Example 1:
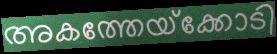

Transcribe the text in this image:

അകത്തേയ്‌ക്കോടി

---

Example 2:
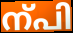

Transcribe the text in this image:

ന്പി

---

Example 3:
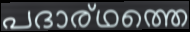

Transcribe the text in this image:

പദാര്ഥത്തെ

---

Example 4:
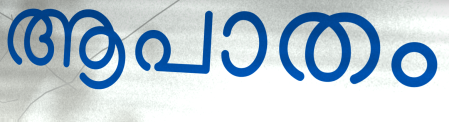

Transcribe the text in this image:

ആപാതം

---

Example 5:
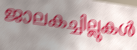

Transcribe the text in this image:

ജാലകച്ചില്ലുകൾ